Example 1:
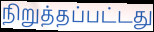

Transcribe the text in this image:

நிறுத்தப்பட்டது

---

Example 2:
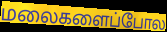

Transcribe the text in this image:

மலைகளைப்போல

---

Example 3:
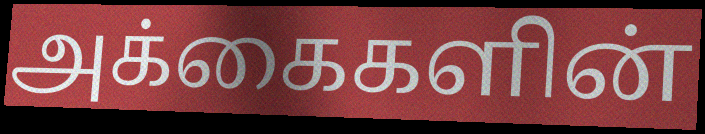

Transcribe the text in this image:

அக்கைகளின்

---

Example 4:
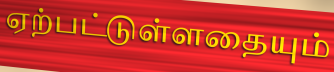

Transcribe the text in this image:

ஏற்பட்டுள்ளதையும்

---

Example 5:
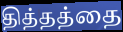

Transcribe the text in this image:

தித்தத்தை